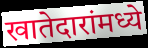
खातेदारांमध्ये